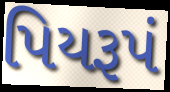
પિયરૂપં